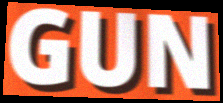
GUN